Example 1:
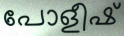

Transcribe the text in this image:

പോളീഷ്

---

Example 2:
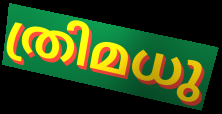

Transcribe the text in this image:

ത്രിമധു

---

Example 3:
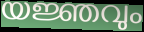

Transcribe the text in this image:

യജ്ഞവും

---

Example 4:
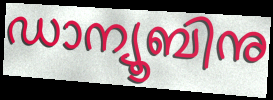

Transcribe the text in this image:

ഡാന്യൂബിനു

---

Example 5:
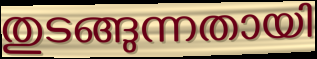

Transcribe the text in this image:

തുടങ്ങുന്നതായി